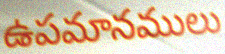
ఉపమానములు